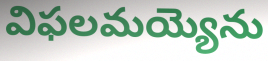
విఫలమయ్యెను